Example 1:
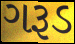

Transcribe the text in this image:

ગરૂડ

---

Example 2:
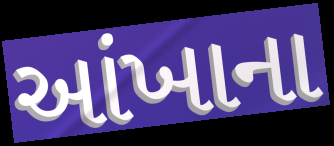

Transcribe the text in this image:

આંખાના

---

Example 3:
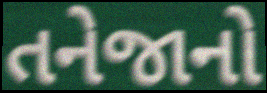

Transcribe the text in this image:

તનેજાનો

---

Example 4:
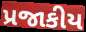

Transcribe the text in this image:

પ્રજાકીય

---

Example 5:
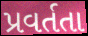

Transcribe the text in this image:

પ્રવર્તતા